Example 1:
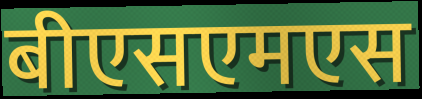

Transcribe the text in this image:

बीएसएमएस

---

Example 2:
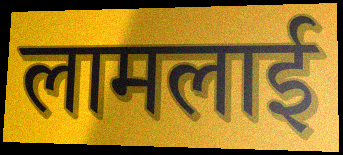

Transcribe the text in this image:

लामलाई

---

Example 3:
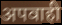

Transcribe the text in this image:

अपवाही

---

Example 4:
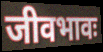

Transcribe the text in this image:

जीवभावः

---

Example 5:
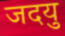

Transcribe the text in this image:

जदयु